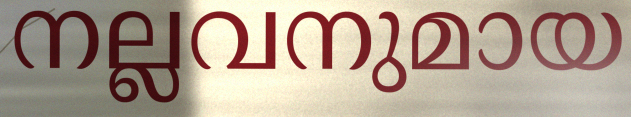
നല്ലവനുമായ